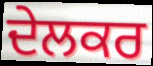
ਦੇਲਕਰ